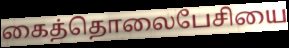
கைத்தொலைபேசியை